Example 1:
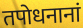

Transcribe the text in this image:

तपोधनानां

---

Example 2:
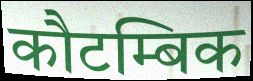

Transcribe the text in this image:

कौटम्बिक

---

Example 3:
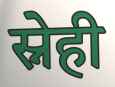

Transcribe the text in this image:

स्नेही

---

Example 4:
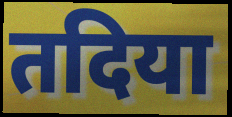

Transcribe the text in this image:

तदिया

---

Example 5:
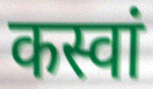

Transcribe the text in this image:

कस्वां